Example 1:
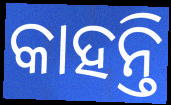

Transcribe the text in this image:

କାହନ୍ତି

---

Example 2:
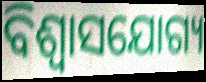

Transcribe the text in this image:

ବିଶ୍ବାସଯୋଗ୍ୟ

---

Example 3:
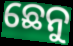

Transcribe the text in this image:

ଛେନୁ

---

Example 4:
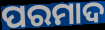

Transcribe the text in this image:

ପରମାଦ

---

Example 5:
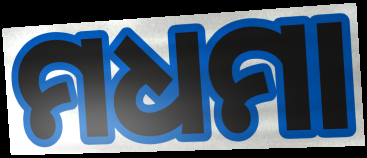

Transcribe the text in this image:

ମଧମା